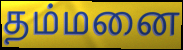
தம்மனை